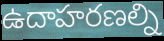
ఉదాహరణల్ని